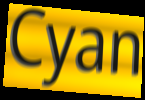
Cyan